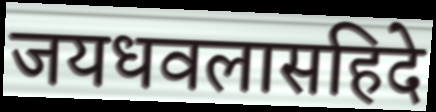
जयधवलासहिदे